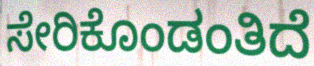
ಸೇರಿಕೊಂಡಂತಿದೆ